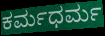
ಕರ್ಮಧರ್ಮ